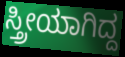
ಸ್ತ್ರೀಯಾಗಿದ್ದ